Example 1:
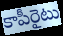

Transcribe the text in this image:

కాపీరైటు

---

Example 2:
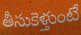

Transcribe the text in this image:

తీసుకెళ్తుంటే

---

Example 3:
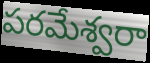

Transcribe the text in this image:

పరమేశ్వరా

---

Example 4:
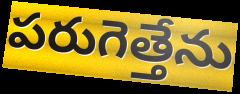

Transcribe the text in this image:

పరుగెత్తేను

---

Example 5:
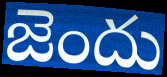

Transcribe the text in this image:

జెందు